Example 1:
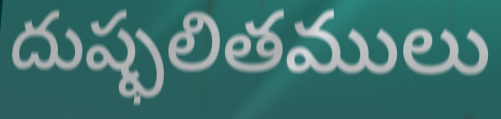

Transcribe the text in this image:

దుష్ఫలితములు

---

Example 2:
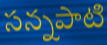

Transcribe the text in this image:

సన్నపాటి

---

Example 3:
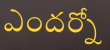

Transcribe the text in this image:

ఎందర్నో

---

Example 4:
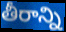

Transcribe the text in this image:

తీరాన్ని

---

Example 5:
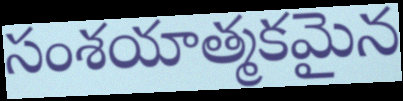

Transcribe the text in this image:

సంశయాత్మకమైన